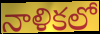
నాళికలో